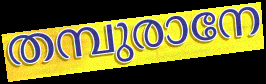
തമ്പുരാനേ